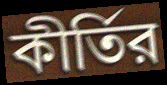
কীর্তির